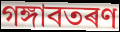
গঙ্গাবতৰণ